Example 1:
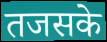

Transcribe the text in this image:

तजसके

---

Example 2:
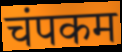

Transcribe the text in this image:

चंपकम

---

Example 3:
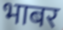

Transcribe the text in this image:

भाबर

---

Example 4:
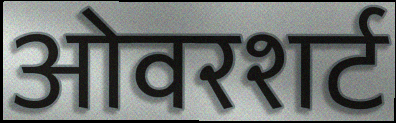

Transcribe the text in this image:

ओवरशर्ट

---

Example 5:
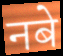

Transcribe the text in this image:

नबे